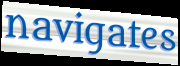
navigates